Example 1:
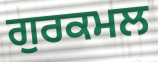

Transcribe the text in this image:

ਗੁਰਕਮਲ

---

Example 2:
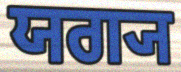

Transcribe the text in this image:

ਯਗ੍ਯ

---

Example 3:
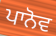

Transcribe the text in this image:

ਪਾਨੋਵ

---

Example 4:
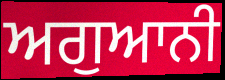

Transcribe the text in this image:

ਅਗੁਆਨੀ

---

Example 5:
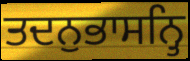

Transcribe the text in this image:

ਤਦਨੁਭਾਸਨ੍ਤਿ